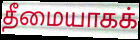
தீமையாகக்